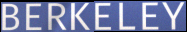
BERKELEY